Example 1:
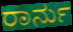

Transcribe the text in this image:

ರಾರ್ನು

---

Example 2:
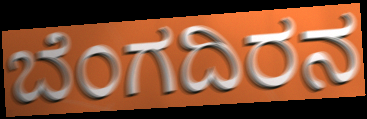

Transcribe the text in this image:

ಬೆಂಗದಿರನ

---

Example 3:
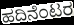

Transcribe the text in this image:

ಹದಿನೆಂಟರ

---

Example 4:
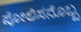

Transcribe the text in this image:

ಪೋಲಿಸನೊಬ್ಬ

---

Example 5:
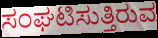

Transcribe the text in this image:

ಸಂಘಟಿಸುತ್ತಿರುವ